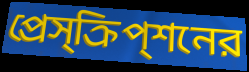
প্রেস্‌ক্রিপ্‌শনের